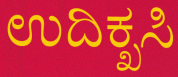
ಉದಿಕ್ಖಸಿ